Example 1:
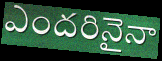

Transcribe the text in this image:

ఎందరినైనా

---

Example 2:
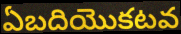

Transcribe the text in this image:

ఏబదియొకటవ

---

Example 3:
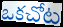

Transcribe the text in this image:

ఒకచోట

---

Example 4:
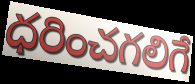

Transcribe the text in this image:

ధరించగలిగే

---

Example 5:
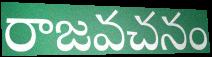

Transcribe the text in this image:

రాజవచనం